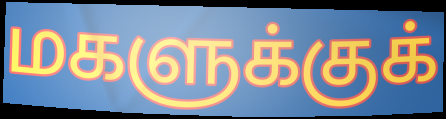
மகளுக்குக்